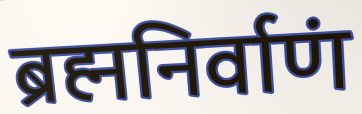
ब्रह्मनिर्वाणं